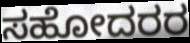
ಸಹೋದರರ